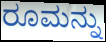
ರೂಮನ್ನು